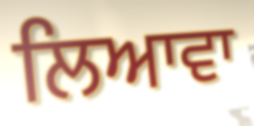
ਲਿਆਵਾ